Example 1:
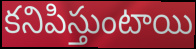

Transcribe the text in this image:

కనిపిస్తుంటాయి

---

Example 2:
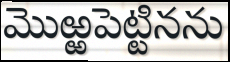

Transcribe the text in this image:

మొఱ్ఱపెట్టినను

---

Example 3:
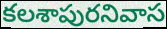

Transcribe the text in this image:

కలశాపురనివాస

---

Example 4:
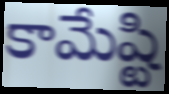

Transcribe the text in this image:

కామేష్టి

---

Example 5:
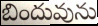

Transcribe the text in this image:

బిందువును